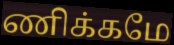
ணிக்கமே